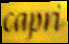
capri